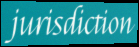
jurisdiction